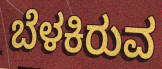
ಬೆಳಕಿರುವ